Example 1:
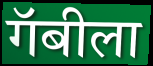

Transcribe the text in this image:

गॅबीला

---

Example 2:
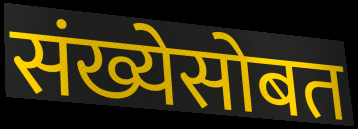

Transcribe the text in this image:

संख्येसोबत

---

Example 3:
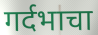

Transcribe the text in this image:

गर्दभाचा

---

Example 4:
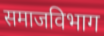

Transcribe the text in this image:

समाजविभाग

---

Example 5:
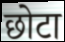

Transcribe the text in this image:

छोटा